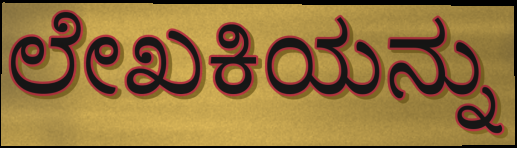
ಲೇಖಕಿಯನ್ನು